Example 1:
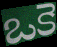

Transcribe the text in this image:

ఒకె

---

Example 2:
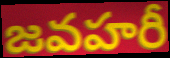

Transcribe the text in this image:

జవహరీ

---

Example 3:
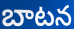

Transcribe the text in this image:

బాటన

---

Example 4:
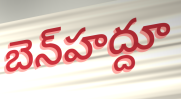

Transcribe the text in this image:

బెన్‍హద్దూ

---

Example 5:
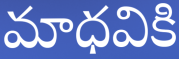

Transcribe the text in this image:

మాధవికి